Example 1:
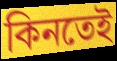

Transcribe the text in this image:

কিনতেই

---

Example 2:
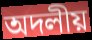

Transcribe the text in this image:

অদলীয়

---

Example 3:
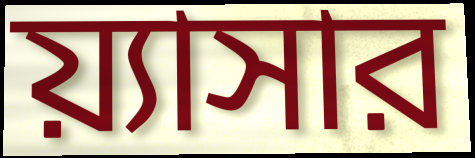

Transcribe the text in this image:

য়্যাসার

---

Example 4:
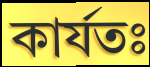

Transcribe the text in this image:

কার্যতঃ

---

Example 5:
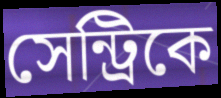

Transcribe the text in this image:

সেন্ট্রিকে